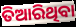
ତିଆରିଥିବା